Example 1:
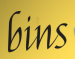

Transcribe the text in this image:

bins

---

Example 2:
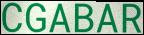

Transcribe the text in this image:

CGABAR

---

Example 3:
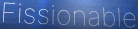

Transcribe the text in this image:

Fissionable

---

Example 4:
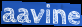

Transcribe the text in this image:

aavine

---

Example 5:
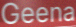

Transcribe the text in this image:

Geena